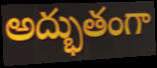
అద్భుతంగా